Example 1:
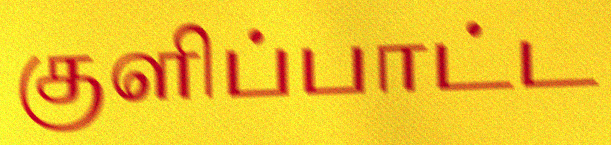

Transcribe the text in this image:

குளிப்பாட்ட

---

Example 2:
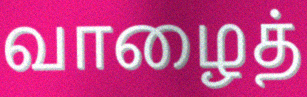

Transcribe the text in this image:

வாழைத்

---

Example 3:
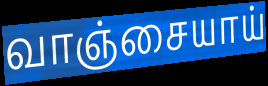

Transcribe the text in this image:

வாஞ்சையாய்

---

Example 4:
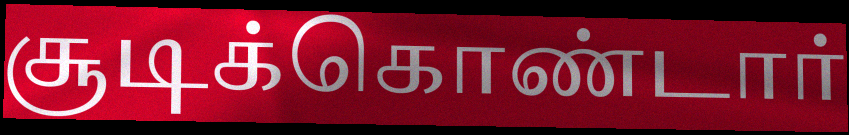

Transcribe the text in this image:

சூடிக்கொண்டார்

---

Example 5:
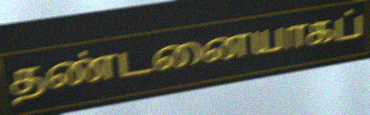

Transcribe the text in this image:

தண்டனையாகப்